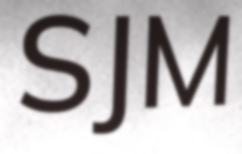
SJM